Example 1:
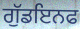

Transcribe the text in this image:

ਗੁੱਡਇਨਫ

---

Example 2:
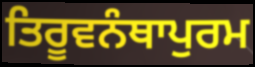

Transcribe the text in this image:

ਤਿਰੂਵਨੰਥਾਪੁਰਮ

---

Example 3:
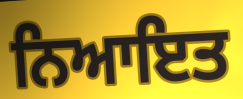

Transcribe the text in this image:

ਨਿਆਇਤ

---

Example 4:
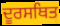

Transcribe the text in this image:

ਦੂਰਸਥਿਤ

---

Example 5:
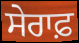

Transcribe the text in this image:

ਸੇਰਾਫ਼